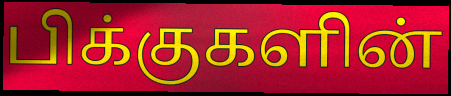
பிக்குகளின்